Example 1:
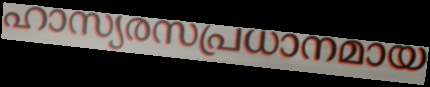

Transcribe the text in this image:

ഹാസ്യരസപ്രധാനമായ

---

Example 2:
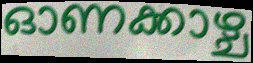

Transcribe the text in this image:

ഓണക്കാഴ്ച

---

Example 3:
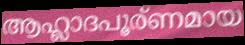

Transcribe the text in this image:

ആഹ്ലാദപൂര്ണമായ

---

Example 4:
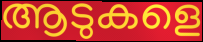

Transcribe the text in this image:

ആടുകളെ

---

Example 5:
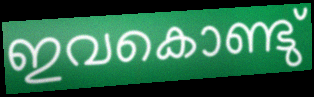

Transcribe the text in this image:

ഇവകൊണ്ടു്